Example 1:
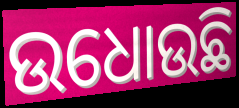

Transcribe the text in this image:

ଉଧୋଉଛି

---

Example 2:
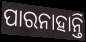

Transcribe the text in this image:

ପାରନାହାନ୍ତି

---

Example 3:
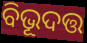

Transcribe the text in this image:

ବିଭୂଦତ୍ତ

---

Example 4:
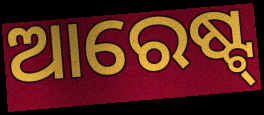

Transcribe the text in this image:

ଆରେଷ୍ଟ୍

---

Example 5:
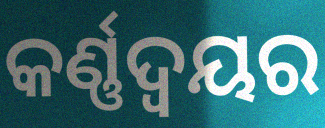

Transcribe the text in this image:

କର୍ଣ୍ଣଦ୍ୱୟର